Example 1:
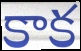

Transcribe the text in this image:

కాక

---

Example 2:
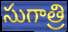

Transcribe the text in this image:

సుగాత్రి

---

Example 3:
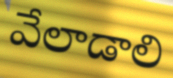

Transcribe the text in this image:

వేలాడాలి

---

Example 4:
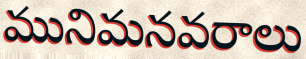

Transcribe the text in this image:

మునిమనవరాలు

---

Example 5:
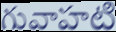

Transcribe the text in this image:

గువాహటి